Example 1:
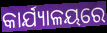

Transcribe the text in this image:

କାର୍ଯ୍ୟାଳୟରେ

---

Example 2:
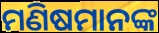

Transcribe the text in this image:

ମଣିଷମାନଙ୍କ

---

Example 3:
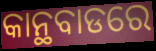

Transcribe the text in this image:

କାନ୍ଥବାଡରେ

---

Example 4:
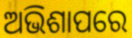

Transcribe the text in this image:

ଅଭିଶାପରେ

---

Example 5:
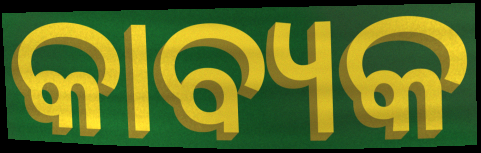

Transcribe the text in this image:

କାବ୍ୟକ